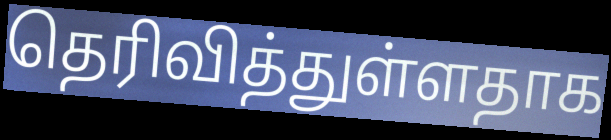
தெரிவித்துள்ளதாக